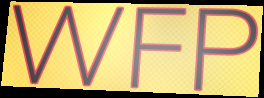
WFP